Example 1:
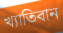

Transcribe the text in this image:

খ্যাতিবান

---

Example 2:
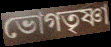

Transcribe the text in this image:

ভোগতৃষ্ণা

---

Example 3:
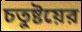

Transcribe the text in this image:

চতুষ্টয়ের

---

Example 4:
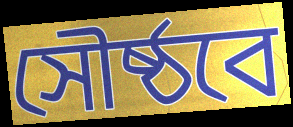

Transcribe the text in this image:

সৌষ্ঠবে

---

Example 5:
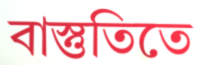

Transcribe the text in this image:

বাস্তুতিতে